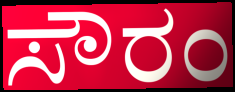
ಸೌರಂ